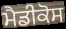
ਮੈਡੀਕੋਸ